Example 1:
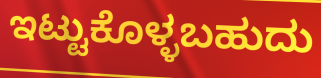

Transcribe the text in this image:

ಇಟ್ಟುಕೊಳ್ಳಬಹುದು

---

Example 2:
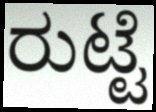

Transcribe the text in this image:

ರುಟ್ಟೆ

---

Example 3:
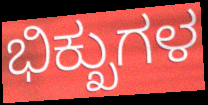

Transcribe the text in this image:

ಭಿಕ್ಖುಗಳ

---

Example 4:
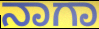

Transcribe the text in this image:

ನಾಗಾ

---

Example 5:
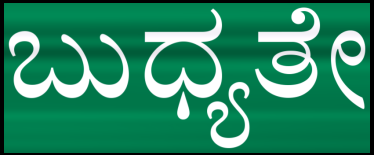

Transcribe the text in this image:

ಬುಧ್ಯತೇ